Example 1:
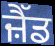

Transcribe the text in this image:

ਜ਼ੈੱਡ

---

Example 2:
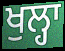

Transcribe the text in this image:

ਖੁਲ੍ਹਾ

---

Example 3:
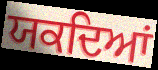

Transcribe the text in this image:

ਯਕਦਿਆਂ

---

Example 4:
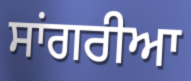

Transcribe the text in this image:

ਸਾਂਗਰੀਆ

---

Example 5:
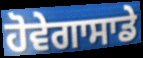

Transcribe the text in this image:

ਹੋਵੇਗਾਸਾਡੇ